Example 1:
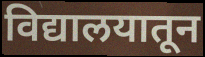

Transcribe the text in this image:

विद्यालयातून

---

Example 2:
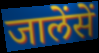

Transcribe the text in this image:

जालेंसें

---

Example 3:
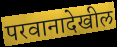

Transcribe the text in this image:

परवानादेखील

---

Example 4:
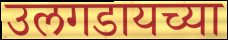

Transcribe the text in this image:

उलगडायच्या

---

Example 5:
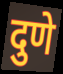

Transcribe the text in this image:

दुणे